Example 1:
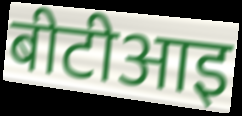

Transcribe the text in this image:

बीटीआइ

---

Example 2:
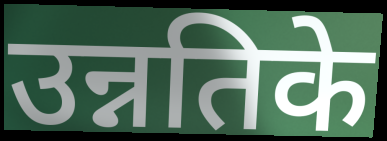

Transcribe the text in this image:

उन्नतिके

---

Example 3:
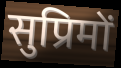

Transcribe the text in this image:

सुप्रिमों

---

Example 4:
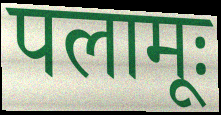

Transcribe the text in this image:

पलामूः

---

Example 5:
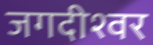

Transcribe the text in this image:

जगदीश्वर